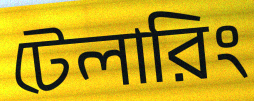
টেলারিং